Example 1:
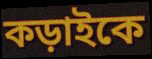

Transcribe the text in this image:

কড়াইকে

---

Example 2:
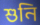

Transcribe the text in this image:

শুনি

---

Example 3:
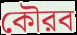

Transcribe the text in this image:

কৌরব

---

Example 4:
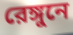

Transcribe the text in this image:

রেঙ্গুনে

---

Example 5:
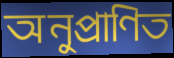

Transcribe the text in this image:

অনুপ্রাণিত